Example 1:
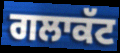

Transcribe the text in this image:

ਗਲਾਕੱਟ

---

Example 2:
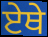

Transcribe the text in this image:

ਏਥੇ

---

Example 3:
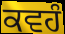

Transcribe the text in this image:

ਕਵਹੰ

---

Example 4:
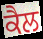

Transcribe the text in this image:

ਕੈਲ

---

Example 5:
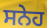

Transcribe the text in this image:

ਸਨੇਹ